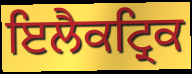
ਇਲੈਕਟ੍ਰਿਕ